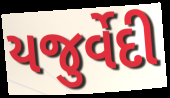
યજુર્વેદી